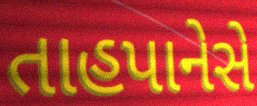
તાહપાનેસે